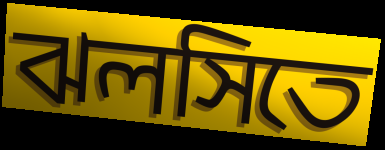
ঝলসিতে